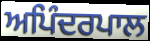
ਅਪਿੰਦਰਪਾਲ